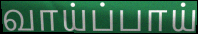
வாய்ப்பாய்